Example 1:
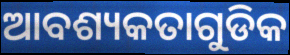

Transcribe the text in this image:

ଆବଶ୍ୟକତାଗୁଡିକ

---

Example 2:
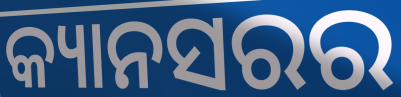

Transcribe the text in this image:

କ୍ୟାନସରର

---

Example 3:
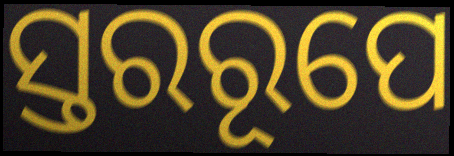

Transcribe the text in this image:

ସ୍ତରରୂପେ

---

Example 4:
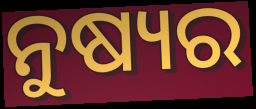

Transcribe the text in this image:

ନୁଷ୍ୟର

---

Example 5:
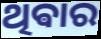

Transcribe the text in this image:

ଥିଵାର